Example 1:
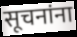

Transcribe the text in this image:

सूचनांना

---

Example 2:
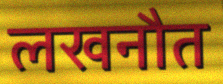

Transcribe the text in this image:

लखनौत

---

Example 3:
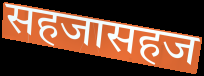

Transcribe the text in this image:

सहजासहज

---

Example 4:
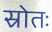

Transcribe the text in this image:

स्रोतः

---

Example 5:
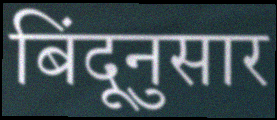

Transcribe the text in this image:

बिंदूनुसार